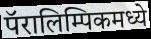
पॅरालिम्पिकमध्ये